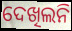
ଦେଖିଲନି